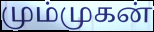
மும்முகன்